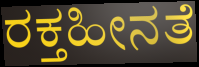
ರಕ್ತಹೀನತೆ